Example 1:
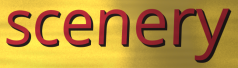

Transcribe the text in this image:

scenery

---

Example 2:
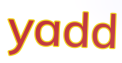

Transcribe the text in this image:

yadd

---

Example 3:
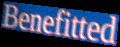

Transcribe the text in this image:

Benefitted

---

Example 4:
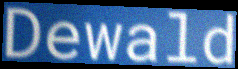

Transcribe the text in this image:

Dewald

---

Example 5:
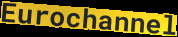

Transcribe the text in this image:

Eurochannel